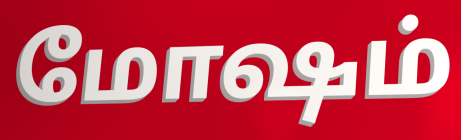
மோஷம்